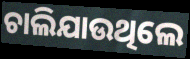
ଚାଲିଯାଉଥିଲେ